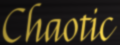
Chaotic